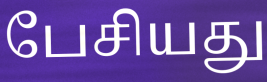
பேசியது